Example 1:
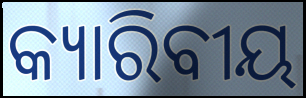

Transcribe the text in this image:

କ୍ୟାରିବୀୟ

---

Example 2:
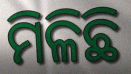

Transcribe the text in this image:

ମିଳିଛି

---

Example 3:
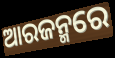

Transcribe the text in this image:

ଆରଜନ୍ମରେ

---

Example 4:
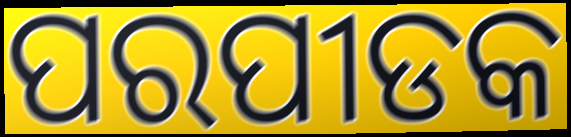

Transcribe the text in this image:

ପରପୀଡକ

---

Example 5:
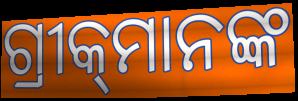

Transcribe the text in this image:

ଗ୍ରୀକ୍‌ମାନଙ୍କ